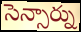
సెన్సార్ను